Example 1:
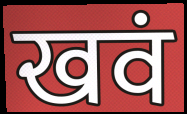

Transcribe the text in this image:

खवं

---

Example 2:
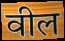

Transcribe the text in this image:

वील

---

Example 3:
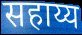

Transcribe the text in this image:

सहाय्य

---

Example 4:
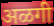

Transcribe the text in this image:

अळगी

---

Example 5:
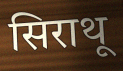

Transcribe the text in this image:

सिराथू